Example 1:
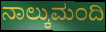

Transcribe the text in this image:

ನಾಲ್ಕುಮಂದಿ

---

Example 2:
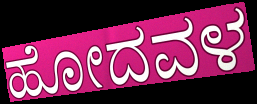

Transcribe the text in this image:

ಹೋದವಳ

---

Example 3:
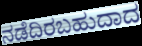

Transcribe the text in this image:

ನಡೆದಿರಬಹುದಾದ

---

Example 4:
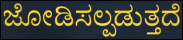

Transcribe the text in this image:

ಜೋಡಿಸಲ್ಪಡುತ್ತದೆ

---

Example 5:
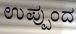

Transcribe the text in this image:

ಉಪ್ಪುಂದ